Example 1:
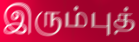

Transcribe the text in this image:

இரும்புத்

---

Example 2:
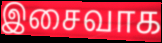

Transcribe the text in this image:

இசைவாக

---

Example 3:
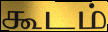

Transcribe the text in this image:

கூடம்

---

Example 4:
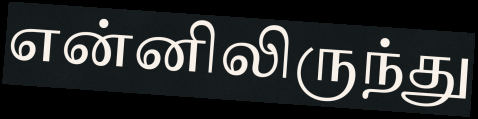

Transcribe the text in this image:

என்னிலிருந்து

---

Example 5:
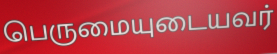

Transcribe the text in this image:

பெருமையுடையவர்